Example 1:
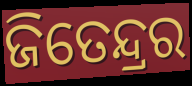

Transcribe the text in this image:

ଜିତେନ୍ଦ୍ରର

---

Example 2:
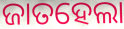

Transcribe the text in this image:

ଜାତହେଲା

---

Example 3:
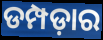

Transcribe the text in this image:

ଡମ୍ପଡ଼ାର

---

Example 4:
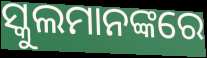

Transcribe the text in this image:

ସ୍କୁଲମାନଙ୍କରେ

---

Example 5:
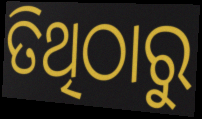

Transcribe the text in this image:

ତିଥିଠାରୁ